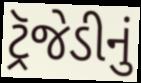
ટ્રૅજેડીનું